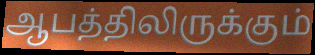
ஆபத்திலிருக்கும்